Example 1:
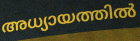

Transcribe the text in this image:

അധ്യായത്തിൽ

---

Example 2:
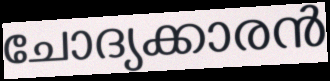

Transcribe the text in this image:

ചോദ്യക്കാരൻ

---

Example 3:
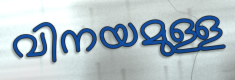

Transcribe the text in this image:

വിനയമുള്ള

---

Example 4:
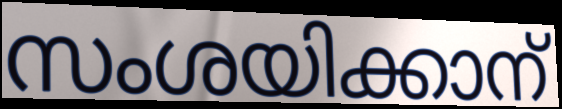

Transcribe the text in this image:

സംശയിക്കാന്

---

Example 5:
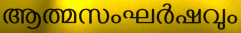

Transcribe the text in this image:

ആത്മസംഘർഷവും